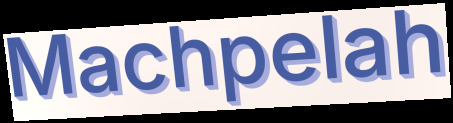
Machpelah